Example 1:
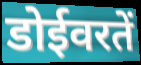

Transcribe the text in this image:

डोईवरतें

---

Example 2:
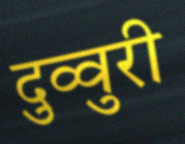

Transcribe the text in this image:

दुव्वुरी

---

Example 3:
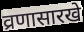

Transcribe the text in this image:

व्रणासारखे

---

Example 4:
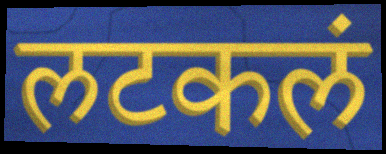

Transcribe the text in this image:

लटकलं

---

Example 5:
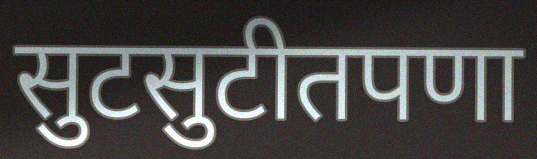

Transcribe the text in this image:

सुटसुटीतपणा